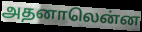
அதனாலென்ன